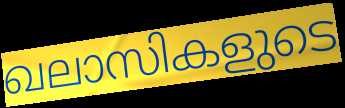
ഖലാസികളുടെ